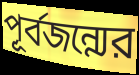
পূর্বজন্মের